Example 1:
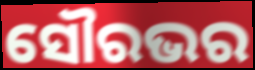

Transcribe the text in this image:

ସୌରଭର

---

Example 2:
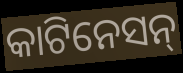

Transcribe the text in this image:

କାଟିନେସନ୍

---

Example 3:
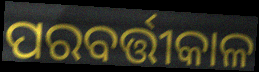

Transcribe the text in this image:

ପରବର୍ତ୍ତୀକାଳ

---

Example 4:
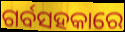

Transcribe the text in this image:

ଗର୍ବସହକାରେ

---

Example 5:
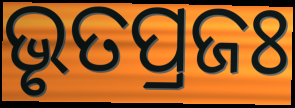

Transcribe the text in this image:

ଭୃତପ୍ରଜଃ